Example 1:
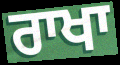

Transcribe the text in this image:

ਰਾਖਾ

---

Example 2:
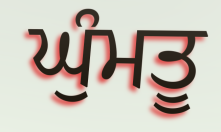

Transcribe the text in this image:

ਘੁੰਮਤੂ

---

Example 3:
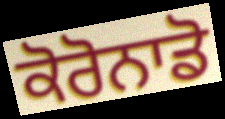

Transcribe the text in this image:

ਕੋਰੋਨਾਡੋ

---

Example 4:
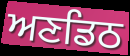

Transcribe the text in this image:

ਅਣਡਿਠ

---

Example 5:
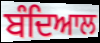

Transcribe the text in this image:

ਬੰਦਿਆਲ